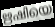
ഋഷിയെ